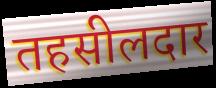
तहसीलदार